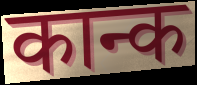
कान्क